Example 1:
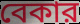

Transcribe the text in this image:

বেকার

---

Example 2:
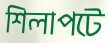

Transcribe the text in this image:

শিলাপটে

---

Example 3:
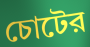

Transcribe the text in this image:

চোটের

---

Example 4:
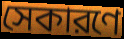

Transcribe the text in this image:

সেকারণে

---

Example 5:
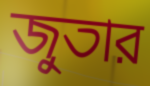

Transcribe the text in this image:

জুতার